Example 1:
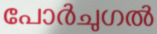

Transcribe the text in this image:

പോർചുഗൽ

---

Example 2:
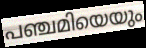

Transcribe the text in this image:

പഞ്ചമിയെയും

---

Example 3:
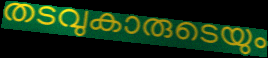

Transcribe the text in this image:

തടവുകാരുടെയും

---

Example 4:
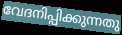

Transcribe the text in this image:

വേദനിപ്പിക്കുന്നതു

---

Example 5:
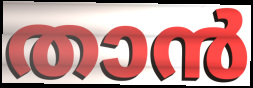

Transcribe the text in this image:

താൻ